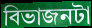
বিভাজনটা